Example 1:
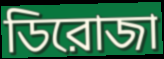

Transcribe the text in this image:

ডিরোজা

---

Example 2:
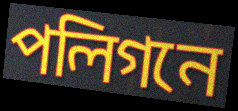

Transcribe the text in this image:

পলিগনে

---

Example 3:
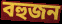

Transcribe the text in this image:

বহুজন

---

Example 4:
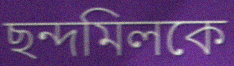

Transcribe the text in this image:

ছন্দমিলকে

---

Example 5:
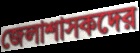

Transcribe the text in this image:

জেলাশাসকদের